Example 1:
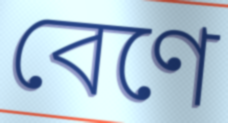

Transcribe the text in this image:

বেণে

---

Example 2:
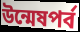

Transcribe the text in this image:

উন্মেষপর্ব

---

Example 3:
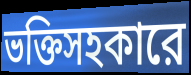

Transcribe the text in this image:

ভক্তিসহকারে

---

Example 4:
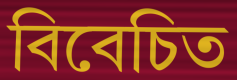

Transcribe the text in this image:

বিবেচিত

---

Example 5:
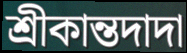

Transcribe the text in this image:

শ্রীকান্তদাদা